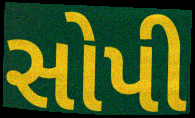
સોપી